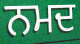
ਨਮਦ